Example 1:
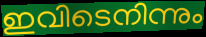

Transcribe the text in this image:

ഇവിടെനിന്നും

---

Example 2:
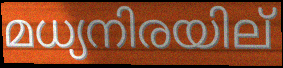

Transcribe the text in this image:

മധ്യനിരയില്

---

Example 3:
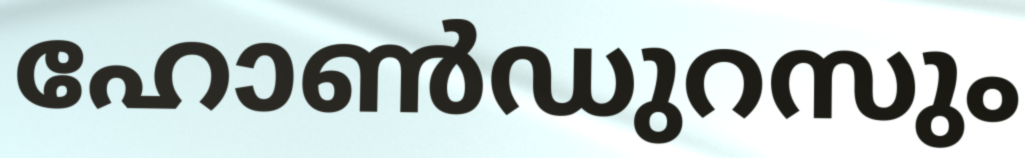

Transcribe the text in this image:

ഹോൺഡുറസും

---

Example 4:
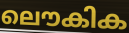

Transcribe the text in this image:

ലൌകിക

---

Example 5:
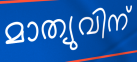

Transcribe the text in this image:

മാത്യുവിന്